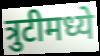
त्रुटीमध्ये